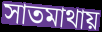
সাতমাথায়